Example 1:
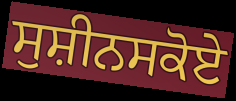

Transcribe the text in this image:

ਸੁਸ਼ੀਨਸਕੋਏ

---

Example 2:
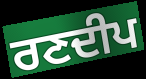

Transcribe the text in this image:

ਰਣਦੀਪ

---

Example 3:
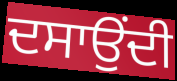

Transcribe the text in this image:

ਦਸਾਉਂਦੀ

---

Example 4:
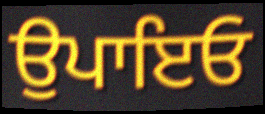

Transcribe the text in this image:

ਉਪਾਇਓ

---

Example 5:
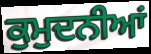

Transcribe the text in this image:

ਕੁਮੁਦਨੀਆਂ